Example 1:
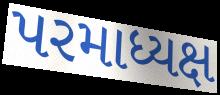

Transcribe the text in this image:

પરમાધ્યક્ષ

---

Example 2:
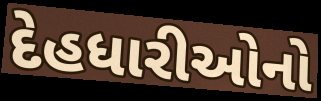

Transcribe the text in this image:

દેહધારીઓનો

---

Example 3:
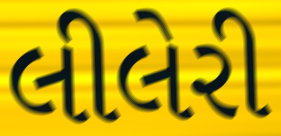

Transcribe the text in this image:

લીલેરી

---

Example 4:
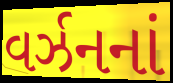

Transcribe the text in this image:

વર્ઝનનાં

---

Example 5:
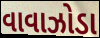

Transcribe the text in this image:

વાવાઝોડા